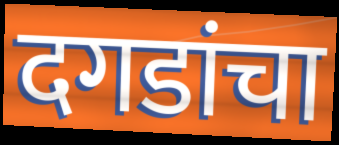
दगडांचा